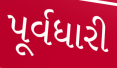
પૂર્વધારી